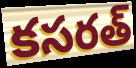
కసరత్